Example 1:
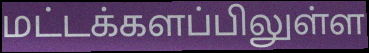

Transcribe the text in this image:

மட்டக்களப்பிலுள்ள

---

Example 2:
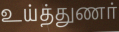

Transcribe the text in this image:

உய்த்துணர்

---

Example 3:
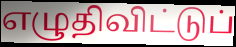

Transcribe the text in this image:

எழுதிவிட்டுப்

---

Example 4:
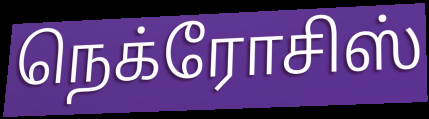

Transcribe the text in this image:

நெக்ரோசிஸ்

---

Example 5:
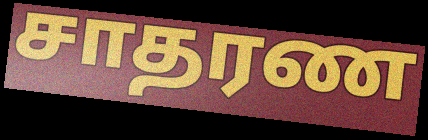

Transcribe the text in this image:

சாதரண